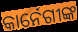
କାର୍ନେଗୀଙ୍କ